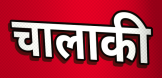
चालाकी